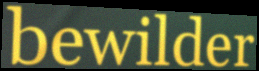
bewilder